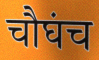
चौघंच